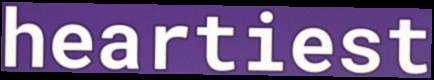
heartiest